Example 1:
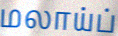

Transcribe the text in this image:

மலாய்ப்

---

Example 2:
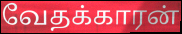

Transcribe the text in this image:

வேதக்காரன்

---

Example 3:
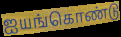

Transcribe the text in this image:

ஐயங்கொண்டு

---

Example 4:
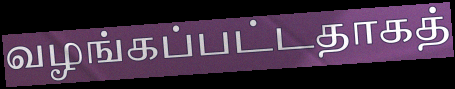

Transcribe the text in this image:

வழங்கப்பட்டதாகத்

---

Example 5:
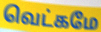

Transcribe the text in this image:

வெட்கமே